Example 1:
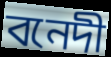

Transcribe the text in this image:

বনেদী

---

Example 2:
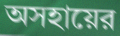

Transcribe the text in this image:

অসহায়ের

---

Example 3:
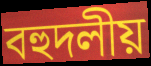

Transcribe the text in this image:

বহুদলীয়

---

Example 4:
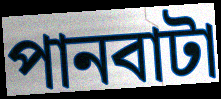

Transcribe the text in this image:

পানবাটা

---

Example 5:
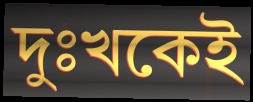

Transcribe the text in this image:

দুঃখকেই